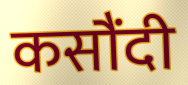
कसौंदी